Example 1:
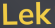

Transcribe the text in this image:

Lek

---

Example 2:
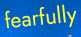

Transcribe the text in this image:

fearfully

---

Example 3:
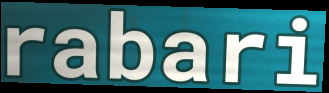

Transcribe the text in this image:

rabari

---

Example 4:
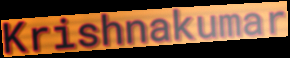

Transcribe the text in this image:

Krishnakumar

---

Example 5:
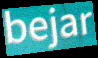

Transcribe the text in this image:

bejar